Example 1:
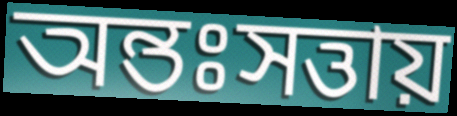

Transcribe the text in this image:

অন্তঃসত্তায়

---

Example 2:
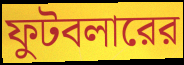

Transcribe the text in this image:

ফুটবলারের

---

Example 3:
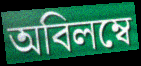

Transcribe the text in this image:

অবিলম্বে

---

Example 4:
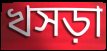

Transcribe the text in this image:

খসড়া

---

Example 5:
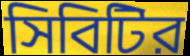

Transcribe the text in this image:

সিবিটির